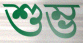
শুম্ভ